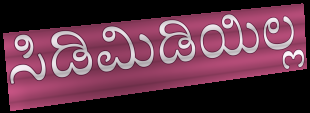
ಸಿಡಿಮಿಡಿಯಿಲ್ಲ